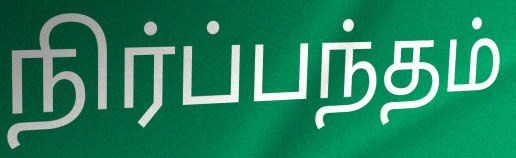
நிர்ப்பந்தம்